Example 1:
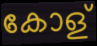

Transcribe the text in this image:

കോള്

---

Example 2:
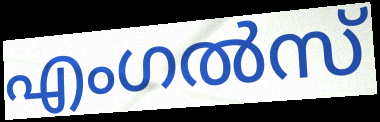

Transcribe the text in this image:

എംഗൽസ്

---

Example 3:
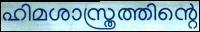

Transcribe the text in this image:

ഹിമശാസ്ത്രത്തിന്റെ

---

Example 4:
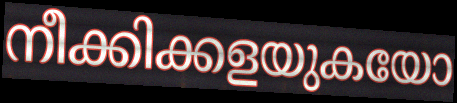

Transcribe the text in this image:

നീക്കിക്കളയുകയോ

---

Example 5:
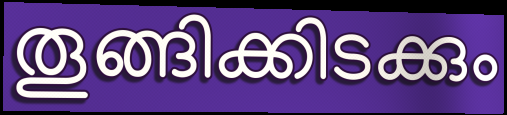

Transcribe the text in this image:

തൂങ്ങിക്കിടക്കും